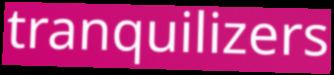
tranquilizers